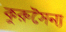
কুরুসৈন্য